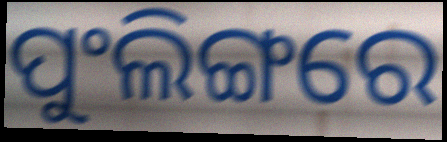
ପୁଂଲିଙ୍ଗରେ